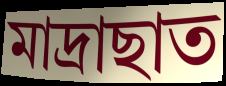
মাদ্ৰাছাত